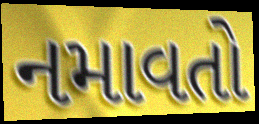
નમાવતો